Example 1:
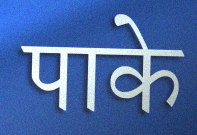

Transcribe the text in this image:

पाके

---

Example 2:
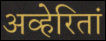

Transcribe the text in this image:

अव्हेरितां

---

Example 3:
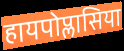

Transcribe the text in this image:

हायपोप्लासिया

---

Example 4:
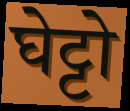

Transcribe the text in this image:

घेट्टो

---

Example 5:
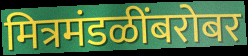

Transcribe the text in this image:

मित्रमंडळींबरोबर